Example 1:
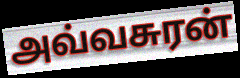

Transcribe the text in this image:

அவ்வசுரன்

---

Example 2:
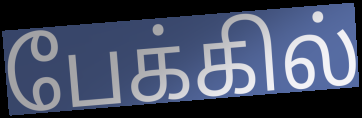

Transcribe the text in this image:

பேக்கில்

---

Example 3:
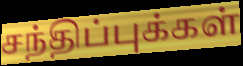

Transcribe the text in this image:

சந்திப்புக்கள்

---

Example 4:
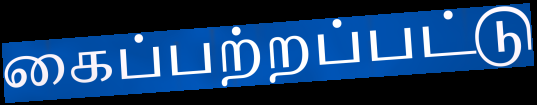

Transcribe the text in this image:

கைப்பற்றப்பட்டு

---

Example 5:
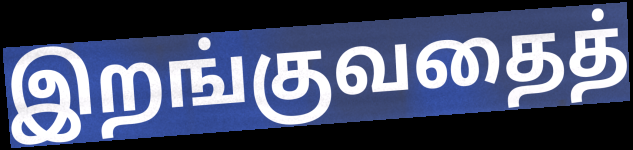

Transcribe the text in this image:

இறங்குவதைத்